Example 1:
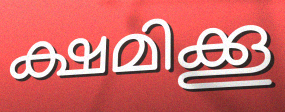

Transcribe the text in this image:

ക്ഷമിക്കൂ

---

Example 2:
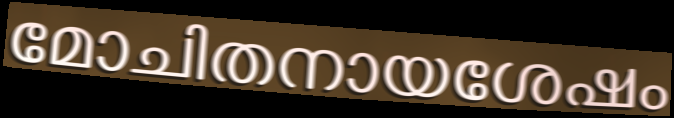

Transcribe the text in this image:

മോചിതനായശേഷം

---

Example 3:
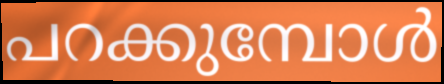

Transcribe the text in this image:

പറക്കുമ്പോൾ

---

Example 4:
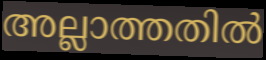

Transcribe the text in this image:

അല്ലാത്തതിൽ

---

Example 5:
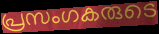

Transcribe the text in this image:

പ്രസംഗകരുടെ